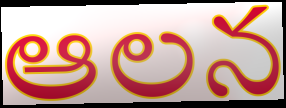
ఆలన